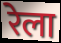
रेला